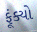
ફૂંક્યો